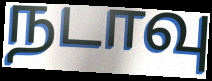
நடாவு